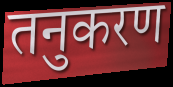
तनुकरण